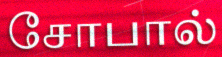
சோபால்